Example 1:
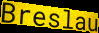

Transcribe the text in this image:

Breslau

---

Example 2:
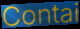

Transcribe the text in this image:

Contai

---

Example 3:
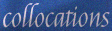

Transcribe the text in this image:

collocations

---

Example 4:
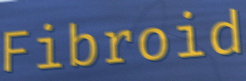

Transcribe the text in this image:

Fibroid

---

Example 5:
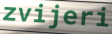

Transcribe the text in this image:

zvijeri